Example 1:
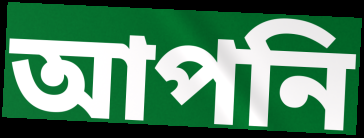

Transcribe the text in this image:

আপনি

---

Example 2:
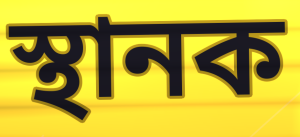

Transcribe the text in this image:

স্থানক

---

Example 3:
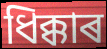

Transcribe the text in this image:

ধিক্কাৰ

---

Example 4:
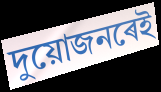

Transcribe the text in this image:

দুয়োজনৰেই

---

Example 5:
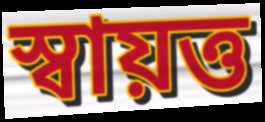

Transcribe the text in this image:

স্বায়ত্ত